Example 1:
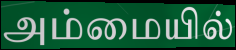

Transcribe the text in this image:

அம்மையில்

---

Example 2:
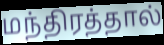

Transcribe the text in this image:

மந்திரத்தால்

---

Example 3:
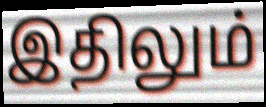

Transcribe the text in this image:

இதிலும்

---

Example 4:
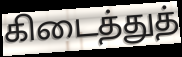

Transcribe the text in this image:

கிடைத்துத்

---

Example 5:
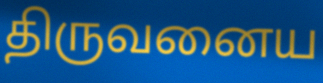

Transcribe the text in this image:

திருவனைய